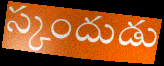
స్కందుడు